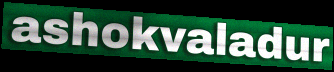
ashokvaladur